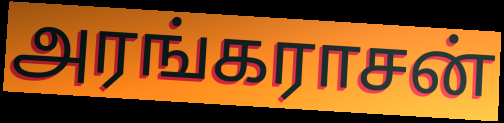
அரங்கராசன்